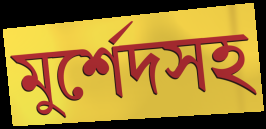
মুর্শেদসহ